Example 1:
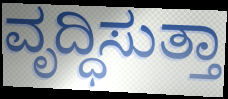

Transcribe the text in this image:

ವೃದ್ಧಿಸುತ್ತಾ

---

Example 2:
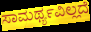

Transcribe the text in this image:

ಸಾಮರ್ಥ್ಯವಿಲ್ಲದೆ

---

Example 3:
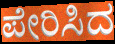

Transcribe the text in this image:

ಪೇರಿಸಿದ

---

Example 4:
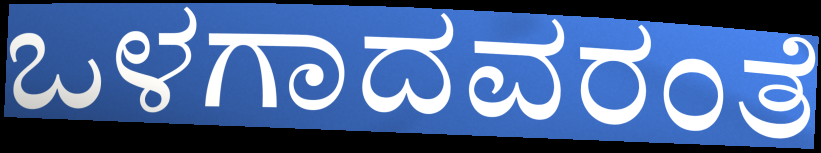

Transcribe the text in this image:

ಒಳಗಾದವರಂತೆ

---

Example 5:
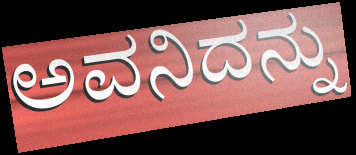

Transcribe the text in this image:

ಅವನಿದನ್ನು